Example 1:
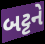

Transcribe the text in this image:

બટ્ટને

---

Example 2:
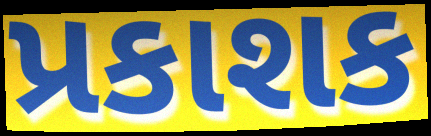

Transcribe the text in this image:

પ્રકાશક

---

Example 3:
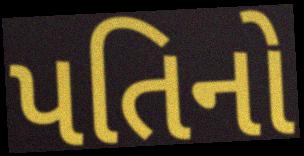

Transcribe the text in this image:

પતિનો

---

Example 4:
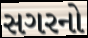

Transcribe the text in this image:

સગરનો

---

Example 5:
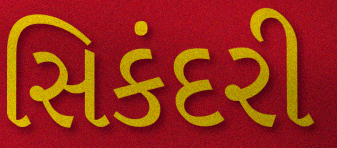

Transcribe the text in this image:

સિકંદરી